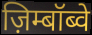
ज़िम्बॉब्वे